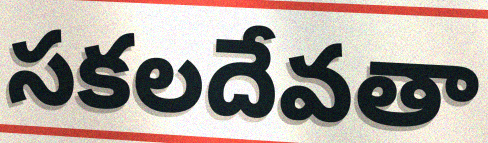
సకలదేవతా